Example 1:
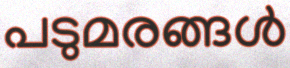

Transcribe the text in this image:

പടുമരങ്ങൾ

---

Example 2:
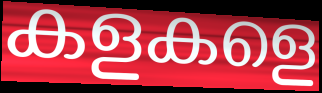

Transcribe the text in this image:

കളകളെ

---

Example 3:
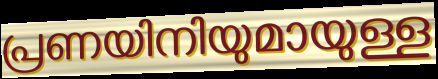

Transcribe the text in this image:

പ്രണയിനിയുമായുള്ള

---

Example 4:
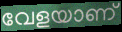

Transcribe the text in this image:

വേളയാണ്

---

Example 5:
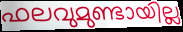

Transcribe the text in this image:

ഫലവുമുണ്ടായില്ല